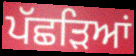
ਪੱਛੜਿਆਂ